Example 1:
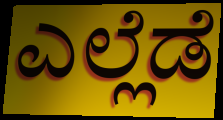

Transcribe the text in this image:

ಎಲ್ಲೆಡೆ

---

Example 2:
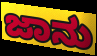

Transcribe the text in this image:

ಜಾನು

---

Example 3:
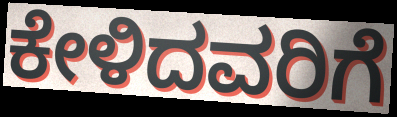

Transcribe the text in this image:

ಕೇಳಿದವರಿಗೆ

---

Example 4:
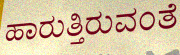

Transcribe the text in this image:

ಹಾರುತ್ತಿರುವಂತೆ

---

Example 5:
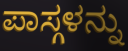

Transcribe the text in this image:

ಪಾಸ್ಗಳನ್ನು